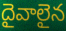
దైవాలైన